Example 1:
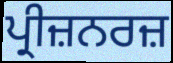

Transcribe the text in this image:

ਪ੍ਰੀਜ਼ਨਰਜ਼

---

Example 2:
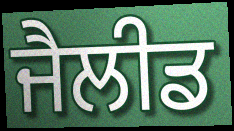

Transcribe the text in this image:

ਜੈਲੀਡ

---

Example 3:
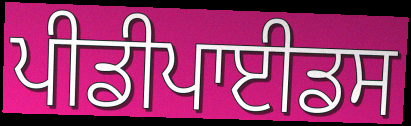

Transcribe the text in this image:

ਪੀਡੀਪਾਈਡਸ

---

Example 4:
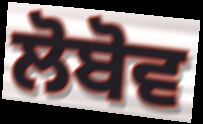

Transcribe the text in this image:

ਲੋਬੋਵ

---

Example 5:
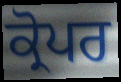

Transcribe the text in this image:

ਕ੍ਰੋਪਰ